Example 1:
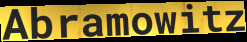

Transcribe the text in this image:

Abramowitz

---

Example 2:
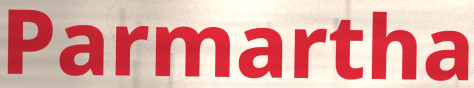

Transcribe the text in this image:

Parmartha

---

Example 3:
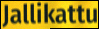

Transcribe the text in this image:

Jallikattu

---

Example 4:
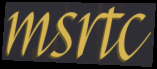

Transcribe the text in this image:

msrtc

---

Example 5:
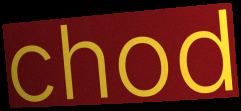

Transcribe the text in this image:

chod